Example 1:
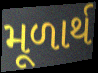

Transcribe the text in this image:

મૂળાર્થ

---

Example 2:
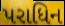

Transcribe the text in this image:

પરાધિન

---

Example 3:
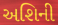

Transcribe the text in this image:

અશિની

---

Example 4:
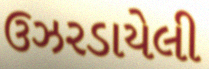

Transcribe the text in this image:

ઉઝરડાયેલી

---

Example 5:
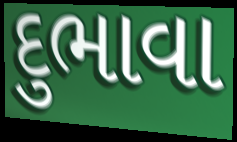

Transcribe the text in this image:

દુભાવા